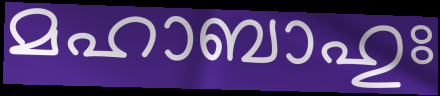
മഹാബാഹുഃ